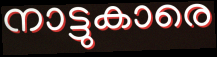
നാട്ടുകാരെ